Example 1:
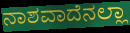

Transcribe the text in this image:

ನಾಶವಾದೆನಲ್ಲಾ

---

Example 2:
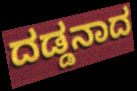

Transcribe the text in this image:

ದಡ್ಡನಾದ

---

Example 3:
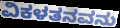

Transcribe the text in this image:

ವಿಕಳತನವನು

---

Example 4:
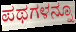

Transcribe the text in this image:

ಪಥಗಳನ್ನೂ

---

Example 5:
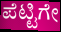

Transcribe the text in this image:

ಪೆಟ್ಟಿಗೇ